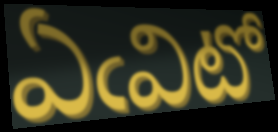
ఏఁవిటో